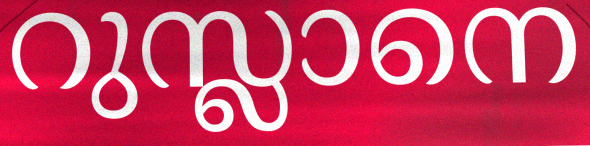
റുസ്ലാനെ